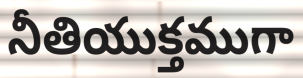
నీతియుక్తముగా